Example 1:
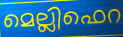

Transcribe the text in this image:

മെല്ലിഫെറ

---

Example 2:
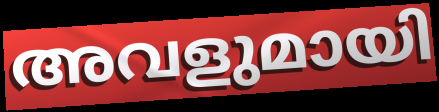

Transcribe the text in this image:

അവളുമായി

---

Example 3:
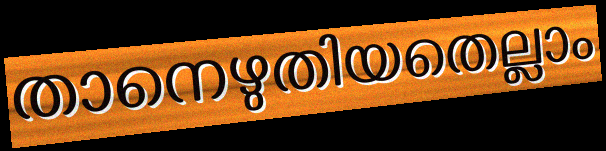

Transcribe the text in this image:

താനെഴുതിയതെല്ലാം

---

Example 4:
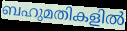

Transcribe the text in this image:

ബഹുമതികളിൽ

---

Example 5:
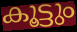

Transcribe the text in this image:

കൂട്ടും